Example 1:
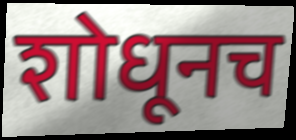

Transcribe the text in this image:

शोधूनच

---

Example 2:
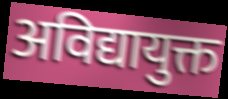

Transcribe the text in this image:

अविद्यायुक्त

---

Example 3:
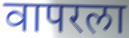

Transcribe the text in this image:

वापरला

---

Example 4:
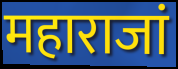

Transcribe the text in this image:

महाराजां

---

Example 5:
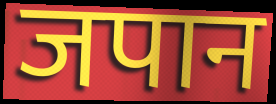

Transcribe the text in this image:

जपान